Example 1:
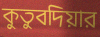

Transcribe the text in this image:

কুতুবদিয়ার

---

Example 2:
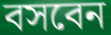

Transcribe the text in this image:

বসবেন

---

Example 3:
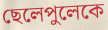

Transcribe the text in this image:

ছেলেপুলেকে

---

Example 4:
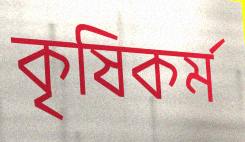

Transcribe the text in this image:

কৃষিকর্ম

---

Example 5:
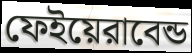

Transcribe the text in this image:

ফেইয়েরাবেন্ড